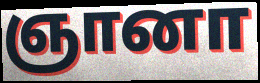
ஞானா